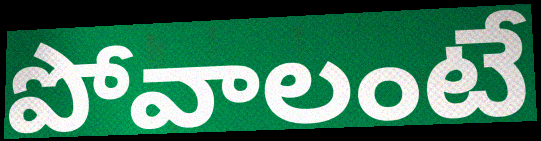
పోవాలంటే